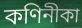
কণিনীকা